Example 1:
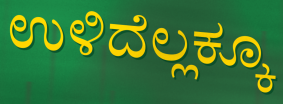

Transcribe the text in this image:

ಉಳಿದೆಲ್ಲಕ್ಕೂ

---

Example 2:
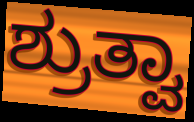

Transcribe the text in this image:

ಶ್ರುತ್ವಾ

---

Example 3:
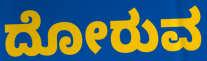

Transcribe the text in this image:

ದೋರುವ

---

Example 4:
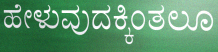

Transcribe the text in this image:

ಹೇಳುವುದಕ್ಕಿಂತಲೂ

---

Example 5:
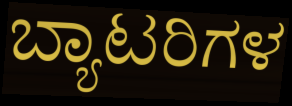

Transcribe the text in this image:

ಬ್ಯಾಟರಿಗಳ